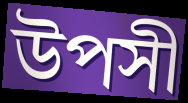
উপসী